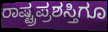
ರಾಷ್ಟ್ರಪ್ರಶಸ್ತಿಗೂ